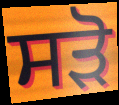
ਸੜੋ